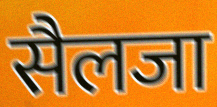
सैलजा